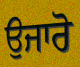
ਉਜਾਰੋ